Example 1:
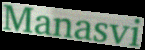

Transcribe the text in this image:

Manasvi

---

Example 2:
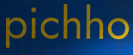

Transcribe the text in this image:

pichho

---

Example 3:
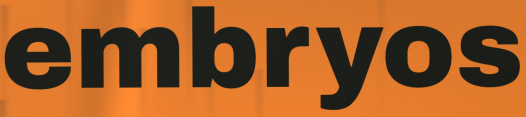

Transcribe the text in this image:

embryos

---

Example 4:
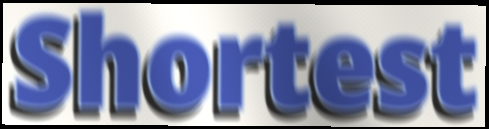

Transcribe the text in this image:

Shortest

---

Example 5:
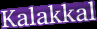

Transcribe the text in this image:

Kalakkal